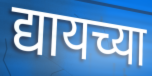
द्यायच्या